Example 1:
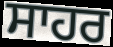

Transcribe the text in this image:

ਸਾਹਰ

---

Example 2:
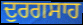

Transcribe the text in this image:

ਦੁਰਗਸਾਹ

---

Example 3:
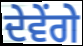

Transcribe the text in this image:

ਦੇਵੇਂਗੇ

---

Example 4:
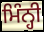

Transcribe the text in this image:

ਮਿੰਨ੍ਹੀ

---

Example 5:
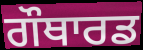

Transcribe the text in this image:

ਗੌਥਾਰਡ